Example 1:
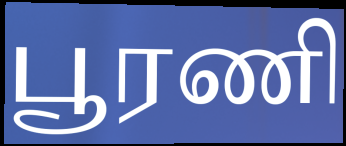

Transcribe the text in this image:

பூரணி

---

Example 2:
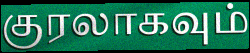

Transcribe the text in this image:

குரலாகவும்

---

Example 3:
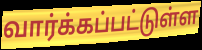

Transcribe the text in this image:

வார்க்கப்பட்டுள்ள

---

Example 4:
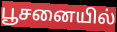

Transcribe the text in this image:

பூசனையில்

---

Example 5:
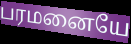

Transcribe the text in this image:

பரமனையே